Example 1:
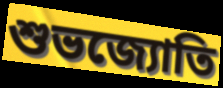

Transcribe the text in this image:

শুভজ্যোতি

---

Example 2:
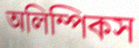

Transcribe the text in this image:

অলিম্পিকস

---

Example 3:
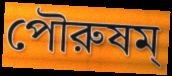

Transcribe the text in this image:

পৌরুষম্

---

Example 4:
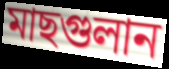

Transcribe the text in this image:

মাছগুলান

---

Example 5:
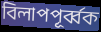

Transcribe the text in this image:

বিলাপপূর্ব্বক